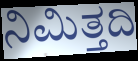
ನಿಮಿತ್ತದಿ